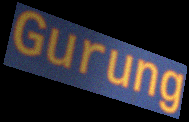
Gurung